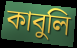
কাবুলি